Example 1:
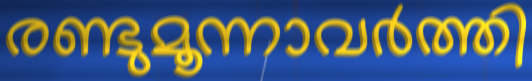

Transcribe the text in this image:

രണ്ടുമൂന്നാവർത്തി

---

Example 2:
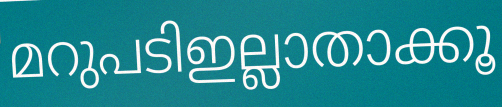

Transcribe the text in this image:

മറുപടിഇല്ലാതാക്കൂ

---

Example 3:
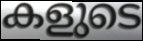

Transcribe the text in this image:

കളുടെ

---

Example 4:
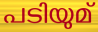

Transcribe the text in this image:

പടിയുമ്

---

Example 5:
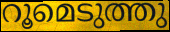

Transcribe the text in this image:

റൂമെടുത്തു